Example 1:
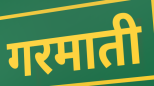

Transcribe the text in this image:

गरमाती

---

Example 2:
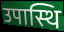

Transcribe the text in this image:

उपास्थि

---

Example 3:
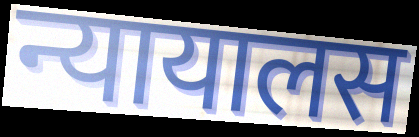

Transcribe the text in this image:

न्यायालस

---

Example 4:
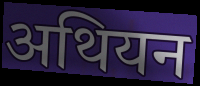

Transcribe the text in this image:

अथियन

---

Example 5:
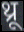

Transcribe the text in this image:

थ्रू